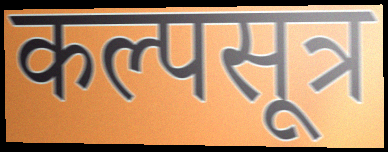
कल्पसूत्र